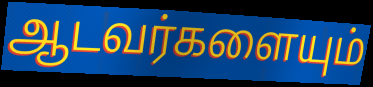
ஆடவர்களையும்